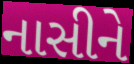
નાસીને